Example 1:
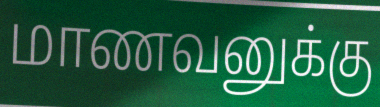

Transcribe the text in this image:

மாணவனுக்கு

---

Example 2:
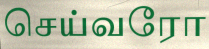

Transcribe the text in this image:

செய்வரோ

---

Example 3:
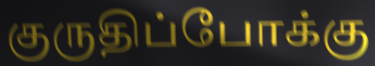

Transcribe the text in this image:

குருதிப்போக்கு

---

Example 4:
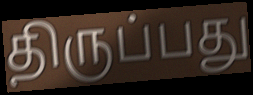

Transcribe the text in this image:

திருப்பது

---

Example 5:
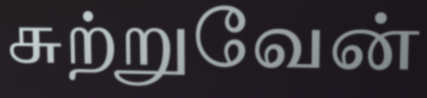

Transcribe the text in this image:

சுற்றுவேன்